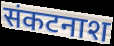
संकटनाश